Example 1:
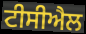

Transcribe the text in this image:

ਟੀਸੀਐਲ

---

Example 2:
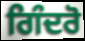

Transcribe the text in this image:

ਗਿੰਦਰੋ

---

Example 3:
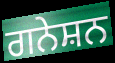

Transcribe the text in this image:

ਗਨੇਸ਼ਨ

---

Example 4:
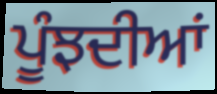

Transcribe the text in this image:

ਪੂੰਝਦੀਆਂ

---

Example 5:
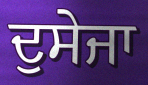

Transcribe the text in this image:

ਦੁਸੇਜਾ